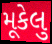
મૂકેલુ